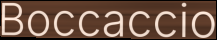
Boccaccio